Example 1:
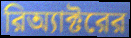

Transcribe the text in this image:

রিঅ্যাক্টরের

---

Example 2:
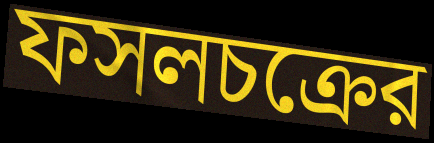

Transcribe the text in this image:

ফসলচক্রের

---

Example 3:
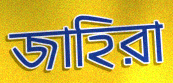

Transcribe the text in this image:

জাহিরা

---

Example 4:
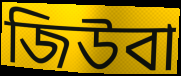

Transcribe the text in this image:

জিউবা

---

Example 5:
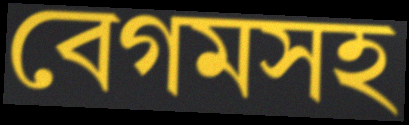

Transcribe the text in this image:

বেগমসহ